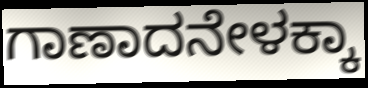
ಗಾಣಾದನೇಳಕ್ಕಾ